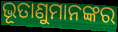
ଭୂତାଣୁମାନଙ୍କର